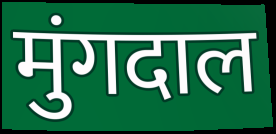
मुंगदाल